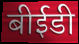
बीईडी